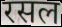
रसल